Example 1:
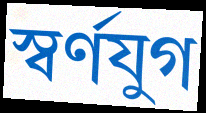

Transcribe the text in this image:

স্বর্ণযুগ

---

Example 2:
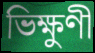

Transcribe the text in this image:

ভিক্ষুণী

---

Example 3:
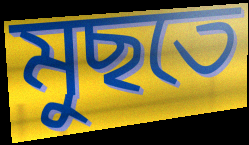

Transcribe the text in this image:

মুছতে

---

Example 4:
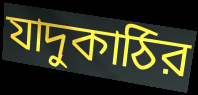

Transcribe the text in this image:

যাদুকাঠির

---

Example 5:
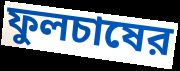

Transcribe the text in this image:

ফুলচাষের